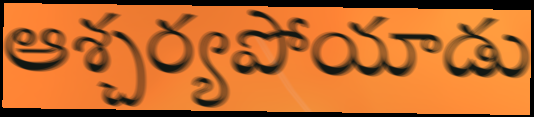
ఆశ్చర్యపోయాడు